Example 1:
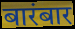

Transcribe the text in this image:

बारंबार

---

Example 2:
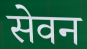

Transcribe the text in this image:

सेवन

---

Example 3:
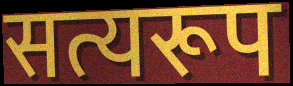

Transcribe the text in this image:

सत्यरूप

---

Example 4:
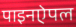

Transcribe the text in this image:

पाइनऐपल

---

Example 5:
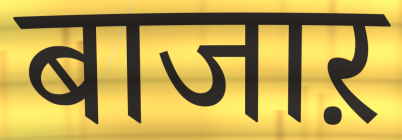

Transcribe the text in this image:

बाजाऱ